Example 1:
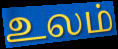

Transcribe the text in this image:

உலம்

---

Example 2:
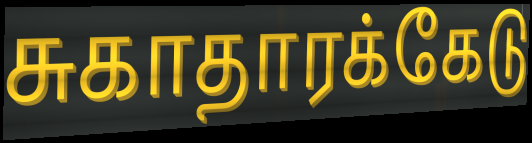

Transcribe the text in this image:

சுகாதாரக்கேடு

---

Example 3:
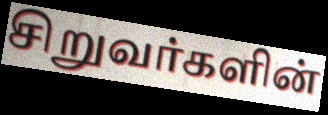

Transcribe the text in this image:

சிறுவர்களின்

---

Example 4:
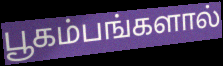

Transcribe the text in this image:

பூகம்பங்களால்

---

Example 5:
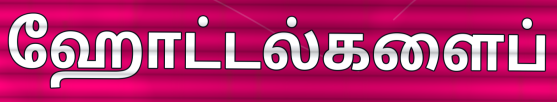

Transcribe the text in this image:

ஹோட்டல்களைப்